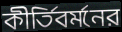
কীর্তিবর্মনের